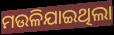
ମଉଳିଯାଇଥିଲା